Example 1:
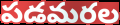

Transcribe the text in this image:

పడమరల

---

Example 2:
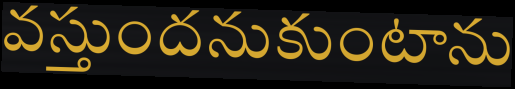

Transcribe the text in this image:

వస్తుందనుకుంటాను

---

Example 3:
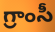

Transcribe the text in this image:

గ్రాంసీ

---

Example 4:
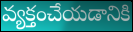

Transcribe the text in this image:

వ్యక్తంచేయడానికి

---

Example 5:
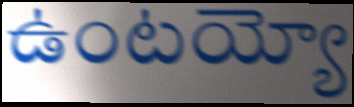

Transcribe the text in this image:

ఉంటయ్యో